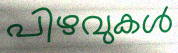
പിഴവുകൾ